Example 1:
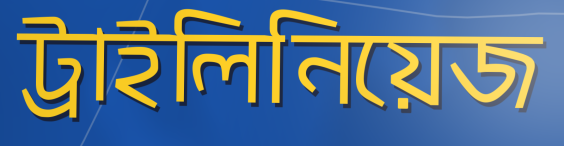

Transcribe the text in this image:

ট্রাইলিনিয়েজ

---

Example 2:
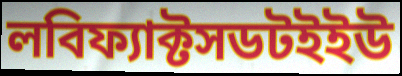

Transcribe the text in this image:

লবিফ্যাক্টসডটইইউ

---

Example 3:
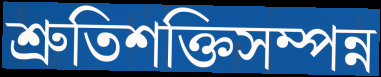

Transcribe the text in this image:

শ্রুতিশক্তিসম্পন্ন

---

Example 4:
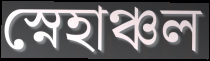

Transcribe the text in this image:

স্নেহাঞ্চল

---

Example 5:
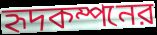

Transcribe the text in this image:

হৃদকম্পনের